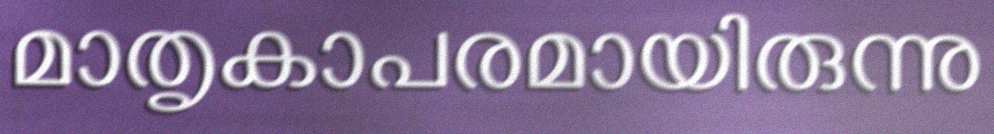
മാതൃകാപരമായിരുന്നു